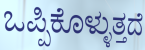
ಒಪ್ಪಿಕೊಳ್ಳುತ್ತದೆ